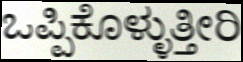
ಒಪ್ಪಿಕೊಳ್ಳುತ್ತೀರಿ